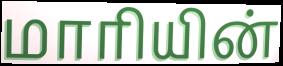
மாரியின்